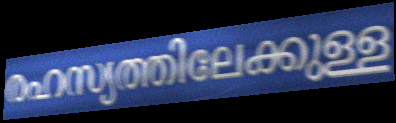
രഹസ്യത്തിലേക്കുള്ള